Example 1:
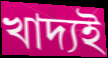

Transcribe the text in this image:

খাদ্যই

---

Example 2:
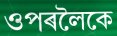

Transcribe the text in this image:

ওপৰলৈকে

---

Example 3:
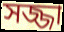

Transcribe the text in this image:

সজ্জা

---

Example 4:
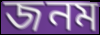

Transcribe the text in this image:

জনম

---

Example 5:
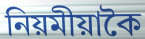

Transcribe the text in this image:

নিয়মীয়াকৈ